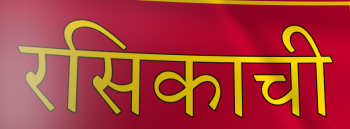
रसिकाची